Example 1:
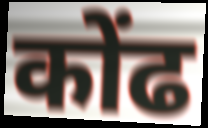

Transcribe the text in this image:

कोंढ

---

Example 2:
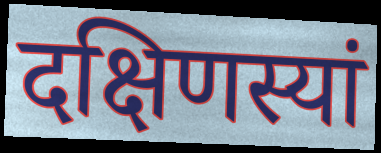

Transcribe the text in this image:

दक्षिणस्यां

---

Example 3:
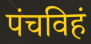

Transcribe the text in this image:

पंचविहं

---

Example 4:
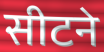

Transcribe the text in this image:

सीटने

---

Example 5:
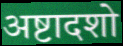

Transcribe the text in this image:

अष्टादशो